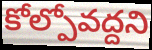
కోల్పోవద్దని